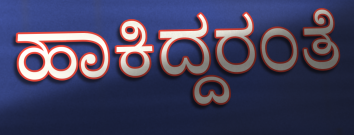
ಹಾಕಿದ್ದರಂತೆ